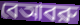
বেআবরু